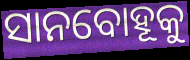
ସାନବୋହୂକୁ